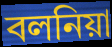
বলনিয়া